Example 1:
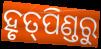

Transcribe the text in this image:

ହୃତ୍‌ପିଣ୍ଡରୁ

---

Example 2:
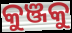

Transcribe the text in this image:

କୁଞ୍ଜକୁ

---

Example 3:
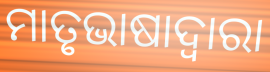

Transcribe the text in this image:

ମାତୃଭାଷାଦ୍ୱାରା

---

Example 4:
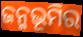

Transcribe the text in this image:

ଜନ୍ମଭୂମିର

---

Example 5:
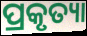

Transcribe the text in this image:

ପ୍ରକୃତ୍ୟା